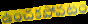
ఉంచకపోవటం